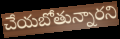
చేయబోతున్నారని